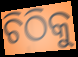
ଚିଠିକୁ